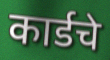
कार्डचे